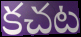
కచట